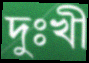
দুঃখী